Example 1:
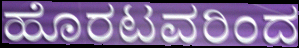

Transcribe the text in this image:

ಹೊರಟವರಿಂದ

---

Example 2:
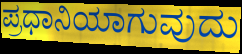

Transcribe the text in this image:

ಪ್ರಧಾನಿಯಾಗುವುದು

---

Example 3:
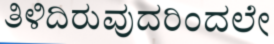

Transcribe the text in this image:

ತಿಳಿದಿರುವುದರಿಂದಲೇ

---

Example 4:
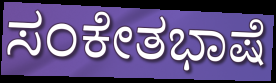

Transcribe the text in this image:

ಸಂಕೇತಭಾಷೆ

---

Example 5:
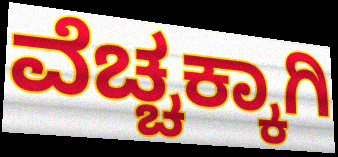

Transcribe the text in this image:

ವೆಚ್ಚಕ್ಕಾಗಿ